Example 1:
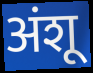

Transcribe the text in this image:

अंशू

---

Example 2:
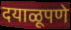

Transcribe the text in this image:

दयाळूपणे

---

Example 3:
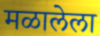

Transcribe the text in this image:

मळालेला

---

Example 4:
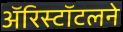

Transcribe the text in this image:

ॲरिस्टॉटलने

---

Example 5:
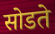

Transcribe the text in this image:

सोडते